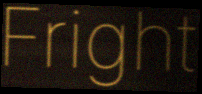
Fright